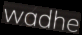
wadhe